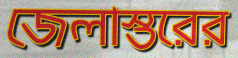
জেলাস্তরের